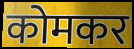
कोमकर